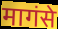
मागंसे